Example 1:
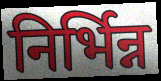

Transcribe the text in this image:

निर्भिन्न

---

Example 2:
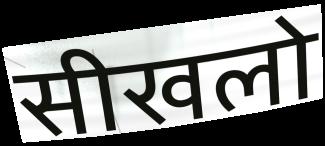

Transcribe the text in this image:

सीखलो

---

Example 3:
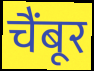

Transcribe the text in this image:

चैंबूर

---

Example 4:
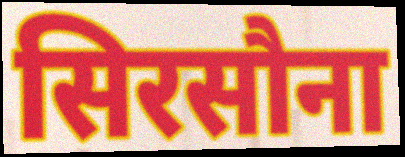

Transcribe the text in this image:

सिरसौना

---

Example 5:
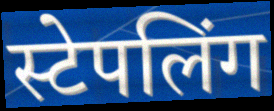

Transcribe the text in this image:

स्टेपलिंग